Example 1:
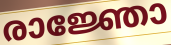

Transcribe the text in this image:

രാജ്ഞോ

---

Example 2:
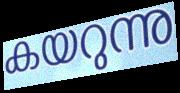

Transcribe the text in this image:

കയറുന്നു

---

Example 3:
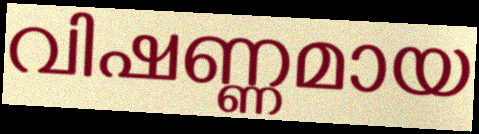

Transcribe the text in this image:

വിഷണ്ണമായ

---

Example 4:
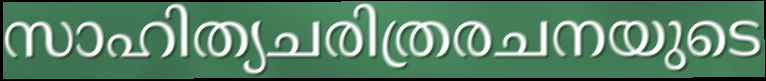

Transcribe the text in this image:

സാഹിത്യചരിത്രരചനയുടെ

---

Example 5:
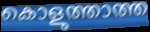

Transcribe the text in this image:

കൊളുത്താത്ത